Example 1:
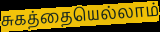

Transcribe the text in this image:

சுகத்தையெல்லாம்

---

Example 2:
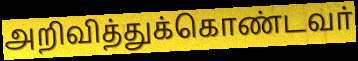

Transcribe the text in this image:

அறிவித்துக்கொண்டவர்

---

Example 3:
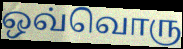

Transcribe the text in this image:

ஒவ்வொரு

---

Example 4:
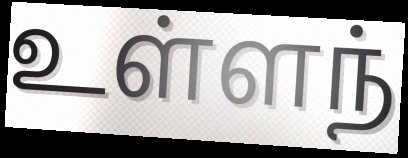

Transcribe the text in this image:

உள்ளந்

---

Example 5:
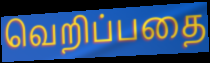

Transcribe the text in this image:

வெறிப்பதை